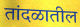
तांदळातील